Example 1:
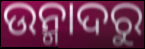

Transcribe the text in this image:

ଉନ୍ମାଦରୁ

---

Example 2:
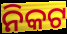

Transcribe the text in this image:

ନିକଟ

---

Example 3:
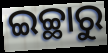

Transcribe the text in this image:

ଇଚ୍ଛାରୁ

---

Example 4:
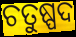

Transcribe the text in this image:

ଚତୁଷ୍ପଦ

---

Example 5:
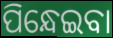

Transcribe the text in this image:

ପିନ୍ଧେଇବା